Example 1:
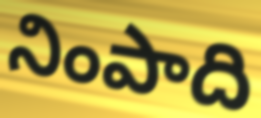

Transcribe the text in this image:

నింపాది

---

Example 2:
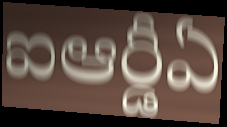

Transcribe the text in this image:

ఐఆర్డీఏ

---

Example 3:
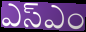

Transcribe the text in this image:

ఎస్ఎం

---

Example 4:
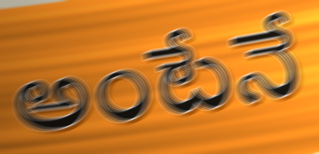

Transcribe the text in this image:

అంటేనే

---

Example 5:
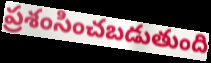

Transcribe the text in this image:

ప్రశంసించబడుతుంది